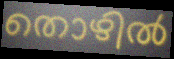
തൊഴിൽ